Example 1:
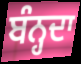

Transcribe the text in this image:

ਬੰਨ੍ਹਦਾ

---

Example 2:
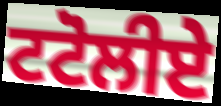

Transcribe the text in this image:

ਟਟੋਲੀਏ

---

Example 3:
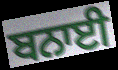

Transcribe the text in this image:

ਬਨਾਈ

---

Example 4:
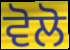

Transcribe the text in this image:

ਵੋਲੋ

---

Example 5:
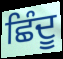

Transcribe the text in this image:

ਛਿੰਦੂ